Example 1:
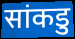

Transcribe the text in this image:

सांकडु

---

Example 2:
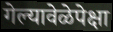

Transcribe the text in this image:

गेल्यावेळेपेक्षा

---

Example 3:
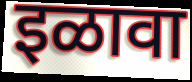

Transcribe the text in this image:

इळावा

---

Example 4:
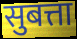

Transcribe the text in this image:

सुबत्ता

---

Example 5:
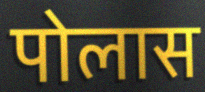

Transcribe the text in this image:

पोलास